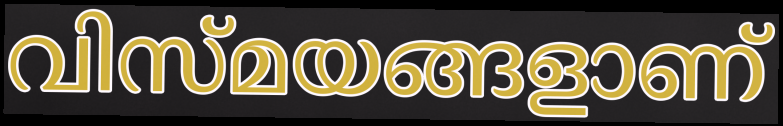
വിസ്മയങ്ങളാണ്